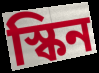
স্কিন